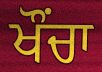
ਖੌੰਚਾ